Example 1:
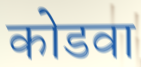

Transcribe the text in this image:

कोडवा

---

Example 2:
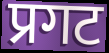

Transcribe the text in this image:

प्रगट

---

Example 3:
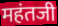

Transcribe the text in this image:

महंतजी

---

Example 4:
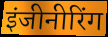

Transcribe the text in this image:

इंजीनीरिंग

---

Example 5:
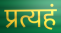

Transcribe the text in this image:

प्रत्यहं